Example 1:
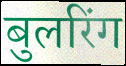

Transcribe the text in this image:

बुलरिंग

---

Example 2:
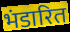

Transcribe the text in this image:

भंडारित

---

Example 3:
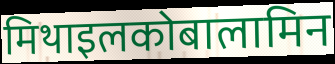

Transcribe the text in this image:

मिथाइलकोबालामिन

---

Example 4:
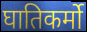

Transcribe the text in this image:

घातिकर्मो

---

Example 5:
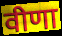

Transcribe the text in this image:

वीणा